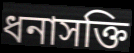
ধনাসক্তি